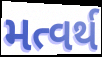
મત્વર્થ